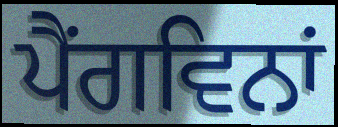
ਪੈਂਗਵਿਨਾਂ